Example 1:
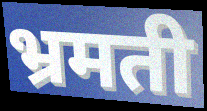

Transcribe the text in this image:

भ्रमती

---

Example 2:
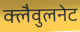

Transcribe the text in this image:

क्लैवुलनेट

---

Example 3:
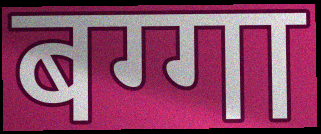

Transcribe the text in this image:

बग्गा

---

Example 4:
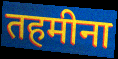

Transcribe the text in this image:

तहमीना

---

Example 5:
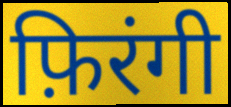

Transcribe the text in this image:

फ़िरंगी